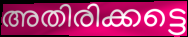
അതിരിക്കട്ടെ